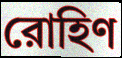
রোহিণ